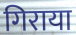
गिराया